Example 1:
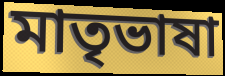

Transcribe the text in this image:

মাতৃভাষা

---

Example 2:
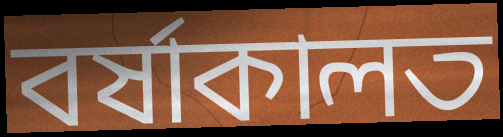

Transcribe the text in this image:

বৰ্ষাকালত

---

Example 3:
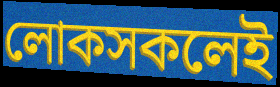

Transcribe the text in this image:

লোকসকলেই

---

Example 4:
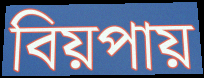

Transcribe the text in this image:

বিয়পায়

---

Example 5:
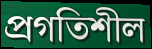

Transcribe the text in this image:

প্ৰগতিশীল